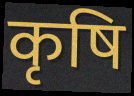
कृषि